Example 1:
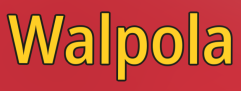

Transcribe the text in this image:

Walpola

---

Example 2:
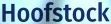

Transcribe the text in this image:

Hoofstock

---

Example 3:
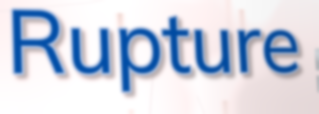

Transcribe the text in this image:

Rupture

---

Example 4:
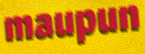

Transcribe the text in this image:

maupun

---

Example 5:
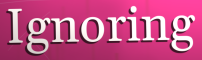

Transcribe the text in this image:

Ignoring